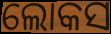
ଲୋକସ